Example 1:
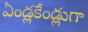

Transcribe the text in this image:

ఏండ్లకేండ్లుగా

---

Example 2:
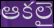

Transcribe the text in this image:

ఆకలై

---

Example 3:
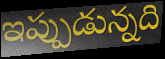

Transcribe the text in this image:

ఇప్పుడున్నది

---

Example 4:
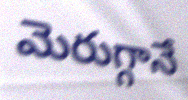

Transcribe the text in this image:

మెరుగ్గానే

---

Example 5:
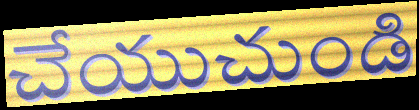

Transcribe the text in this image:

చేయుచుండి